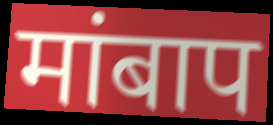
मांबाप